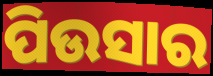
ପିଉସାର